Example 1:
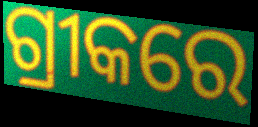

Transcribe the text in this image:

ଗ୍ରୀକରେ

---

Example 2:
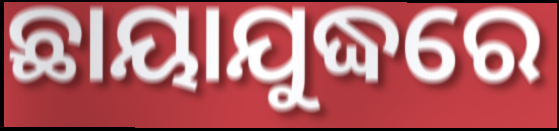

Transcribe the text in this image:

ଛାୟାଯୁଦ୍ଧରେ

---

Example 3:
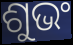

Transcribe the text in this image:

ଶୁଭଂ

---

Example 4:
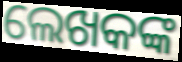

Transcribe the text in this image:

ଲେଖକଙ୍କ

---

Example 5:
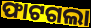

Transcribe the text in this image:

ଫାଟଗଲା